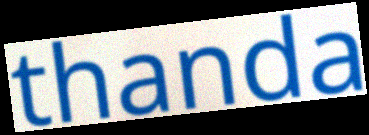
thanda